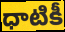
ధాటికీ